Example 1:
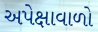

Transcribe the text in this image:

અપેક્ષાવાળો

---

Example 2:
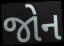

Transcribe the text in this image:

જોન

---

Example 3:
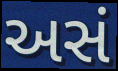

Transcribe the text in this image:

અસં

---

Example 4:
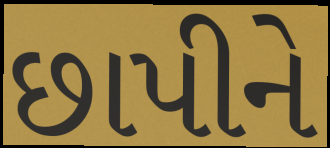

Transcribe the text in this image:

છાપીને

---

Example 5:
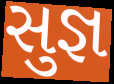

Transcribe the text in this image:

સુજ્ઞ